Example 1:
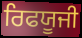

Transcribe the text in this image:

ਰਿਫਯੂਜੀ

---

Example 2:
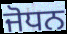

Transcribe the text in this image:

ਜੋਧਨ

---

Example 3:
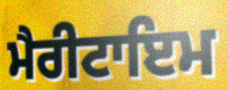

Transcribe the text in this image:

ਮੈਰੀਟਾਇਮ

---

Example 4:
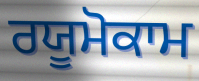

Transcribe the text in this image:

ਰਯੂਮੋਕਾਮ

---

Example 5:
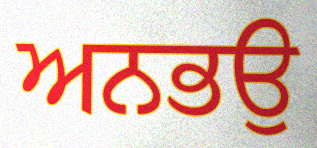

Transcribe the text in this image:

ਅਨਭਉ